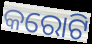
କରୋଟି